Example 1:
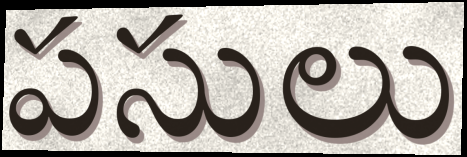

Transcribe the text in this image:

పసులు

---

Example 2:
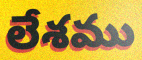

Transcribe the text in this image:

లేశము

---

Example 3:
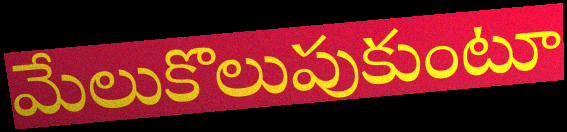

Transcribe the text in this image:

మేలుకొలుపుకుంటూ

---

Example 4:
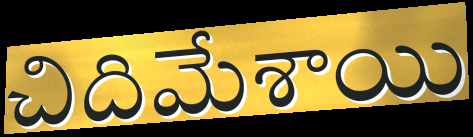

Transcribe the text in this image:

చిదిమేశాయి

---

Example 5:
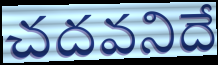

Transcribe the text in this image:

చదవనిదే